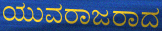
ಯುವರಾಜರಾದ